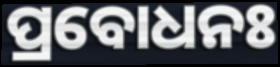
ପ୍ରବୋଧନଃ